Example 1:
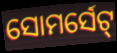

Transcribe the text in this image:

ସୋମର୍ସେଟ୍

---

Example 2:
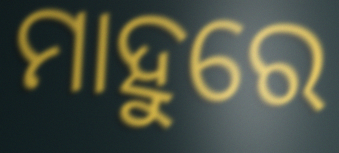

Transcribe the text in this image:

ମାହୁରେ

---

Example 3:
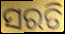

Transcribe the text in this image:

ସରତି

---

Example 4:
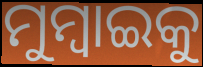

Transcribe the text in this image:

ମୁମ୍ବାଇକୁ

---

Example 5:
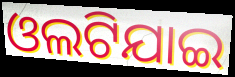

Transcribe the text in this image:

ଓଲଟିଯାଇ